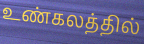
உண்கலத்தில்